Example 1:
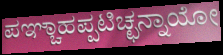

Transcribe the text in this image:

ಪಞ್ಚಾಹಪ್ಪಟಿಚ್ಛನ್ನಾಯೋ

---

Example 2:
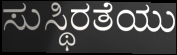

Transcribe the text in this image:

ಸುಸ್ಥಿರತೆಯು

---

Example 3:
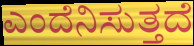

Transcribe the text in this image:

ಎಂದೆನಿಸುತ್ತದೆ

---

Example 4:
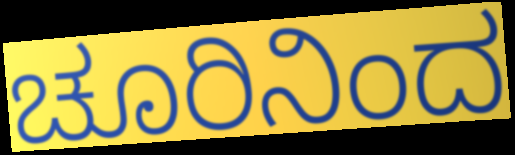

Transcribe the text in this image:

ಚೂರಿನಿಂದ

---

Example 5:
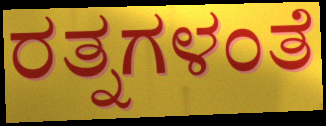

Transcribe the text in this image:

ರತ್ನಗಳಂತೆ